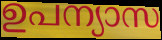
ഉപന്യാസ